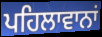
ਪਹਿਲਾਵਾਨਾਂ